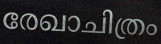
രേഖാചിത്രം